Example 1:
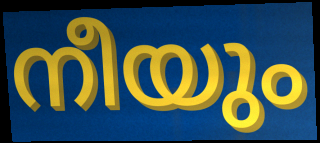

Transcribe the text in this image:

നീയും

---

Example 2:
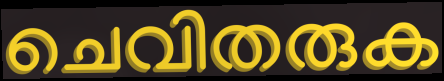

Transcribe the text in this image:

ചെവിതരുക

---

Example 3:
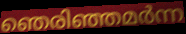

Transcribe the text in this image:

ഞെരിഞ്ഞമർന്ന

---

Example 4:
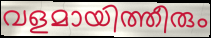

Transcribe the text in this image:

വളമായിത്തീരും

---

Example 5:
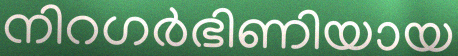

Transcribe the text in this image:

നിറഗർഭിണിയായ